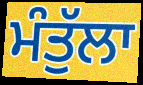
ਮੰਤੁੱਲਾ